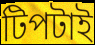
টিপটাই